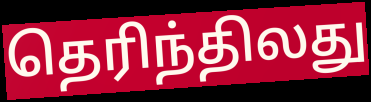
தெரிந்திலது